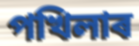
পখিলাৰ